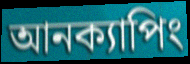
আনক্যাপিং